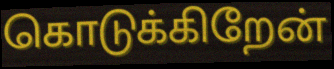
கொடுக்கிறேன்